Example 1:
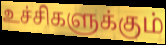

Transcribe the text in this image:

உச்சிகளுக்கும்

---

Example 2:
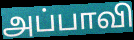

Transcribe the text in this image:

அப்பாவி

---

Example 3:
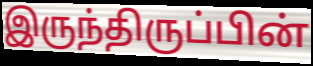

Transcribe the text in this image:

இருந்திருப்பின்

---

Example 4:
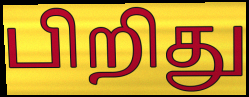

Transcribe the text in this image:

பிறிது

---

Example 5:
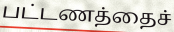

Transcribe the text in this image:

பட்டணத்தைச்